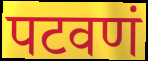
पटवणं